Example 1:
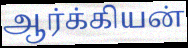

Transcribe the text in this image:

ஆர்க்கியன்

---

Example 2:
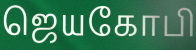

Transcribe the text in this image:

ஜெயகோபி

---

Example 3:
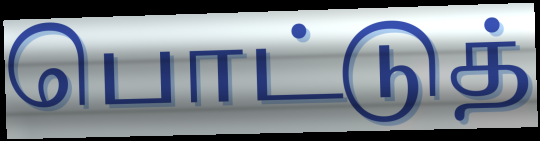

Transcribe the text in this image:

பொட்டுத்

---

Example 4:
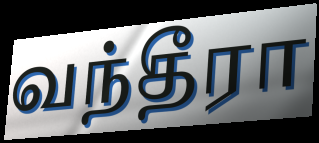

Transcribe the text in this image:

வந்தீரா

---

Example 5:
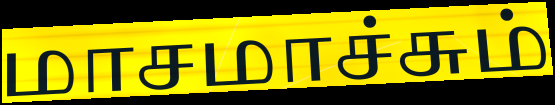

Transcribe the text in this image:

மாசமாச்சும்